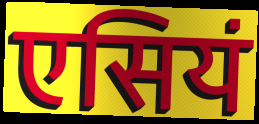
एसियं